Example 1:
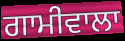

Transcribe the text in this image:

ਗਾਮੀਵਾਲਾ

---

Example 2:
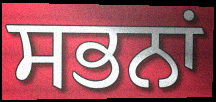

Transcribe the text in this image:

ਸਭਨਾਂ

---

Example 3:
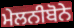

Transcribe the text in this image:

ਮੇਲਨੀਬੋਨੇ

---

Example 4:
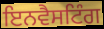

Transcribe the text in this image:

ਇਨਵੈਸਟਿੰਗ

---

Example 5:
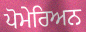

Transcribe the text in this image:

ਪੋਮੇਰਿਅਨ